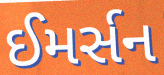
ઈમર્સન